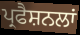
ਪ੍ਰਫੈਸ਼ਨਲਾਂ